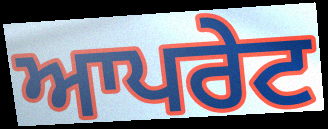
ਆਪਰੇਟ